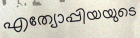
എത്യോപ്പിയയുടെ